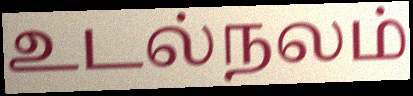
உடல்நலம்